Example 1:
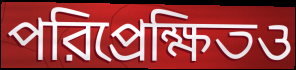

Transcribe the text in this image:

পরিপ্রেক্ষিতও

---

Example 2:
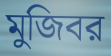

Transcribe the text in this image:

মুজিবর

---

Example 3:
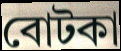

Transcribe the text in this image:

বোটকা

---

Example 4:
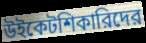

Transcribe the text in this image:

উইকেটশিকারিদের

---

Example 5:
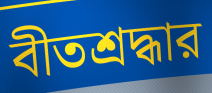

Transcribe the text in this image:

বীতশ্রদ্ধার